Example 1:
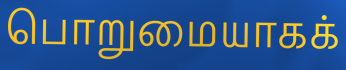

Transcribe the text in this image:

பொறுமையாகக்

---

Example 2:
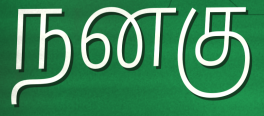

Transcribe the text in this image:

நனகு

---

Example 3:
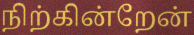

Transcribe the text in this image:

நிற்கின்றேன்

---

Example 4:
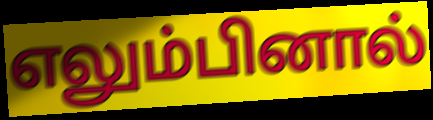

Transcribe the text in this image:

எலும்பினால்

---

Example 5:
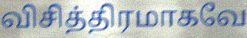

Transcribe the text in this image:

விசித்திரமாகவே